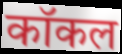
कॉकल